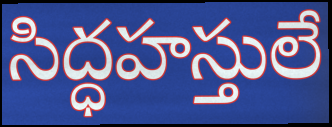
సిద్ధహస్తులే